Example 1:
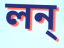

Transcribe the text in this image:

লন্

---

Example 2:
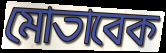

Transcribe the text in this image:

মোতাবেক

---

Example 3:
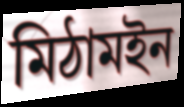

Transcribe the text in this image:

মিঠামইন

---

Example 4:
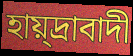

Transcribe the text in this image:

হায়্দ্রাবাদী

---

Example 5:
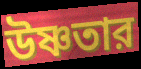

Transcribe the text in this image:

উষ্ণতার